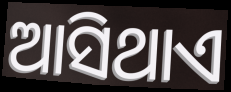
ଆସିଥାଏ